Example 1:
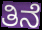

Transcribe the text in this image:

ತಿನೆ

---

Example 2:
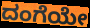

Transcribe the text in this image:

ದಂಗೆಯೇ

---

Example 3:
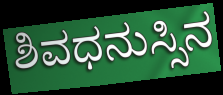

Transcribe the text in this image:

ಶಿವಧನುಸ್ಸಿನ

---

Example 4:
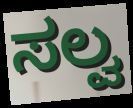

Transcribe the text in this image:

ಸಲ್ವ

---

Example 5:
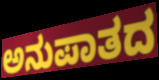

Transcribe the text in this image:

ಅನುಪಾತದ